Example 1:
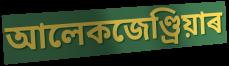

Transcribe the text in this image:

আলেকজেণ্ড্ৰিয়াৰ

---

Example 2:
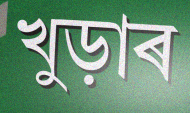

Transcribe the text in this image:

খুড়াৰ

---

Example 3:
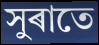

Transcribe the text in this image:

সুৰাতে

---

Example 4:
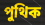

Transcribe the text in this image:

পুথিক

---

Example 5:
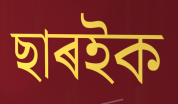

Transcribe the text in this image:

ছাৰইক